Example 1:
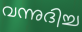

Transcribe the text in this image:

വന്നുദിച്ച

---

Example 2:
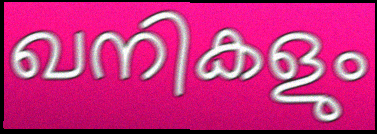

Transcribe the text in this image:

ഖനികളും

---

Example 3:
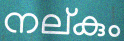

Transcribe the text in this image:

നല്കും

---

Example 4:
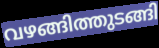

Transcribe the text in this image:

വഴങ്ങിത്തുടങ്ങി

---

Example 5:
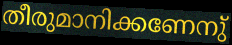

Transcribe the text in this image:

തീരുമാനിക്കണേനു്